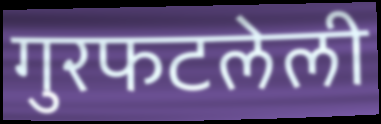
गुरफटलेली